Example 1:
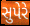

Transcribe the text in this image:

સુપેરે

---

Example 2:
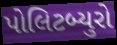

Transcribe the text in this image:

પોલિટબ્યુરો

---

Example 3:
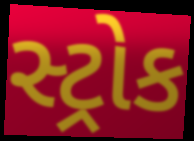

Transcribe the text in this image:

સ્ટ્રોક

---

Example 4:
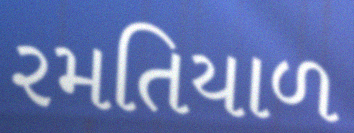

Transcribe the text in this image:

રમતિયાળ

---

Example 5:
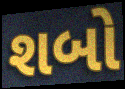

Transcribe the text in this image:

શબો